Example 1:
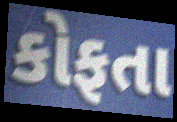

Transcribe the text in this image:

કોફતા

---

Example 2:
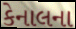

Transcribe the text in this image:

કેનાલના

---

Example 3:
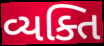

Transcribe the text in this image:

વ્યક્તિ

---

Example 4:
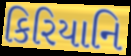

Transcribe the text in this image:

કિરિયાનિ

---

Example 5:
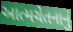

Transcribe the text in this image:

આત્મચેતનાનું